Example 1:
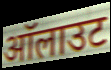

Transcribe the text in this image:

ऑलाउट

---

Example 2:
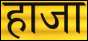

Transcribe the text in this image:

हाजा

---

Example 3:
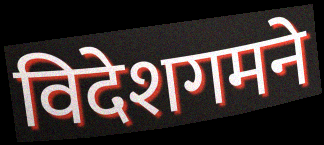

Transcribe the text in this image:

विदेशगमने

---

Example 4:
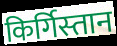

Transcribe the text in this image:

किर्गिस्‍तान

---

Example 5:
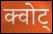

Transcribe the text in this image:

क्वोट्